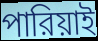
পারিয়াই